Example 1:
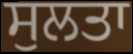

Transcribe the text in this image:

ਸੁਲਤਾ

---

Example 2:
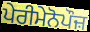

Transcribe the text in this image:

ਪੇਰੀਮੇਨੋਪੌਜ਼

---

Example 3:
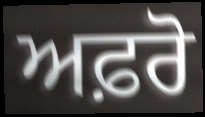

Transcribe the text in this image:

ਅਫ਼ਰੋ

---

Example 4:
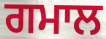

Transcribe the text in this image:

ਗਮਾਲ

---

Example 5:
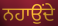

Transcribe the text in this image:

ਨਹਾਉਂਦੇ